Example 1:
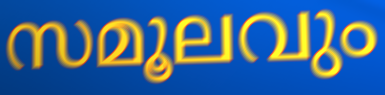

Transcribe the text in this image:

സമൂലവും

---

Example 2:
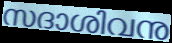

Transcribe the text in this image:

സദാശിവനു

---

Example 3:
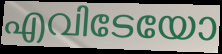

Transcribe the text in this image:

എവിടേയോ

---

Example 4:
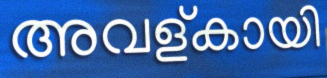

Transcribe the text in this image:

അവള്കായി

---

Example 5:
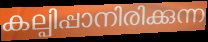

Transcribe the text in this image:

കല്പിപ്പാനിരിക്കുന്ന